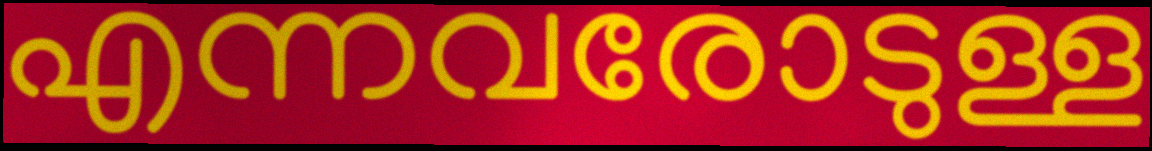
എന്നവരോടുള്ള